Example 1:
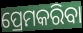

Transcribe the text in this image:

ପ୍ରେମକରିବା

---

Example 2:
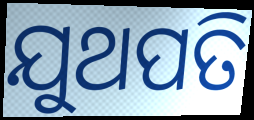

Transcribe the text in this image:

ଯୁଥପତି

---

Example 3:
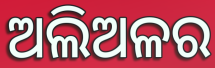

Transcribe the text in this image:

ଅଲିଅଳର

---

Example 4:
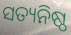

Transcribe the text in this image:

ସତ୍ୟନିଷ୍ଠ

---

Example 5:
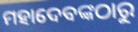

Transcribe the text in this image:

ମହାଦେବଙ୍କଠାରୁ